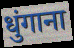
धुंगाना